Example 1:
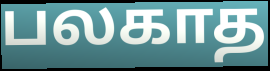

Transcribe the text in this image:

பலகாத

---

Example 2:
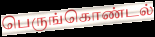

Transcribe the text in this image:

பெருங்கொண்டல்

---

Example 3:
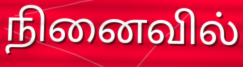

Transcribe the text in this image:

நினைவில்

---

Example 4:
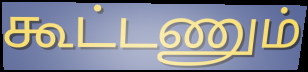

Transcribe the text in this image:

கூட்டணும்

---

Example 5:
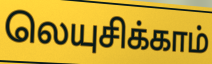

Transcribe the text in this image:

லெயுசிக்காம்